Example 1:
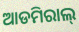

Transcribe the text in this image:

ଆଡମିରାଲ୍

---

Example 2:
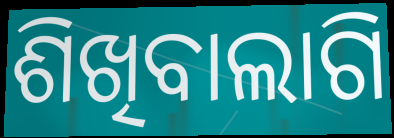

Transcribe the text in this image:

ଶିଖିବାଲାଗି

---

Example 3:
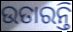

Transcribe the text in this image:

ଉତାରନ୍ତି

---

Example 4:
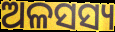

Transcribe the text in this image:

ଅଳସସ୍ୟ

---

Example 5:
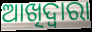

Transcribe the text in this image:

ଆଖିଦ୍ୱାରା